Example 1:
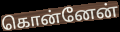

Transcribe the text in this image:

கொன்னேன்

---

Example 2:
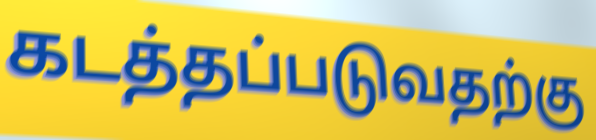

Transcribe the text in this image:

கடத்தப்படுவதற்கு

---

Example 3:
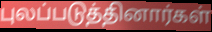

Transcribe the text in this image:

புலப்படுத்தினார்கள்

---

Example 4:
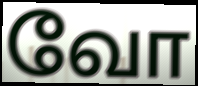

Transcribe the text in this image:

வோ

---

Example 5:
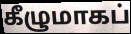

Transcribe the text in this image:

கீழுமாகப்